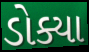
ડોક્યા